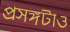
প্রসঙ্গটাও